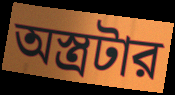
অস্ত্রটার